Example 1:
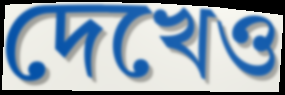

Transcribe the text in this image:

দেখেও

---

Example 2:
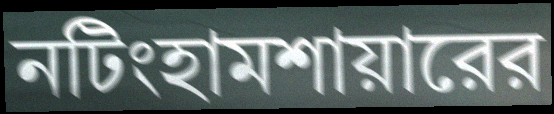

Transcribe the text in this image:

নটিংহামশায়ারের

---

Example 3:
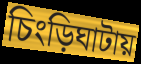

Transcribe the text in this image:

চিংড়িঘাটায়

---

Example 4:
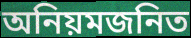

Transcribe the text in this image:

অনিয়মজনিত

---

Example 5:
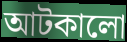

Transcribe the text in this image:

আটকালো